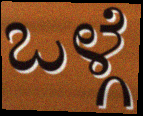
ಒಳ್ಗೆ